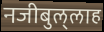
नजीबुल्लाह